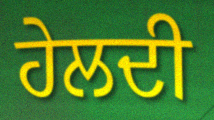
ਹੇਲਦੀ